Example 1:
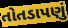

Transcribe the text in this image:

તોતડાપણું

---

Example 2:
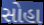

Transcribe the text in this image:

સોહા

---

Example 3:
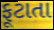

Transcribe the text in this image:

ફૂટાતા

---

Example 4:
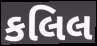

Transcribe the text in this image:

કલિલ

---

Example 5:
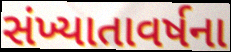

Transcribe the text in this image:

સંખ્યાતાવર્ષના